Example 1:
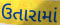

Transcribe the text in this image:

ઉતારામાં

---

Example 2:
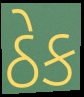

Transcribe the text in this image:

ઠેક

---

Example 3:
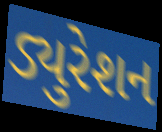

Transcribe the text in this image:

ડ્યુરેશન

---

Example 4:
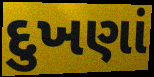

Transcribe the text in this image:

દુખણાં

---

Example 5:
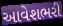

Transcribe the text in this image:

આવેશભરી